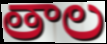
తాల